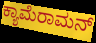
ಕ್ಯಾಮೆರಾಮನ್